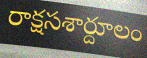
రాక్షసశార్దూలం